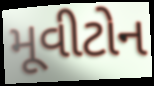
મૂવીટોન